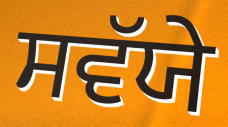
ਸਵੱਯੇ